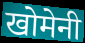
खोमेनी